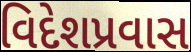
વિદેશપ્રવાસ